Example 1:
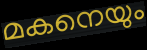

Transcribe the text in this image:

മകനെയും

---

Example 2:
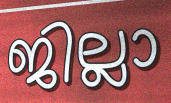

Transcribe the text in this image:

ജില്ലാ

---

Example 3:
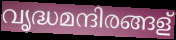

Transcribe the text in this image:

വൃദ്ധമന്ദിരങ്ങള്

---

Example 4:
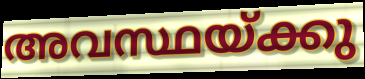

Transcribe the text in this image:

അവസ്ഥയ്ക്കു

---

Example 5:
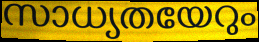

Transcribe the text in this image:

സാധ്യതയേറും